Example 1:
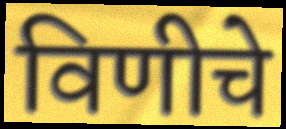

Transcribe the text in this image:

विणीचे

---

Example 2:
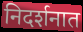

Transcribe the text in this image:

निदर्शनात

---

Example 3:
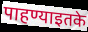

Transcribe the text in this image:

पाहण्याइतके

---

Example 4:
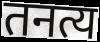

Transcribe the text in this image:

तनत्य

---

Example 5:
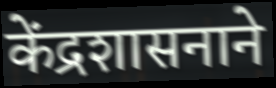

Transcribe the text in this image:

केंद्रशासनाने